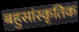
बहुसांस्कृतिक